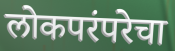
लोकपरंपरेचा